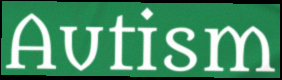
Autism